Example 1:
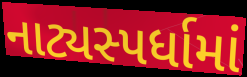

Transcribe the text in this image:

નાટ્યસ્પર્ધામાં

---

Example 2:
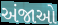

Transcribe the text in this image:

અંજાઓ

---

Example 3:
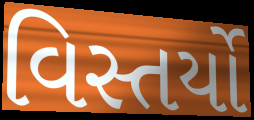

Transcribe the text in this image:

વિસ્તર્યો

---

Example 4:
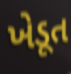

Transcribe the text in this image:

ખેડૂત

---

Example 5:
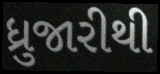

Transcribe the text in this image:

ધ્રુજારીથી